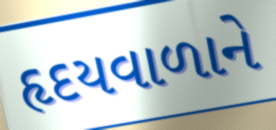
હૃદયવાળાને